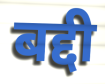
बद्दी